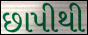
છાપીથી